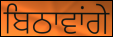
ਬਿਠਾਵਾਂਗੇ